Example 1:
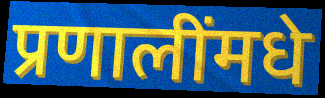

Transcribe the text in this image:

प्रणालींमधे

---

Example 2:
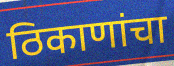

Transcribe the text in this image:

ठिकाणांचा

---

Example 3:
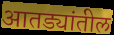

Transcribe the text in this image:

आतड्यांतील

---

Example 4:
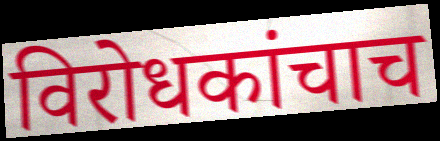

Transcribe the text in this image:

विरोधकांचाच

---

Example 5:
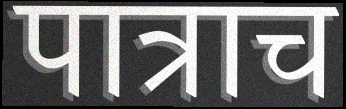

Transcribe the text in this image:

पात्राच